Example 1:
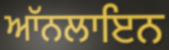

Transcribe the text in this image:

ਆੱਨਲਾਇਨ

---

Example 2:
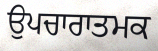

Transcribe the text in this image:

ਉਪਚਾਰਾਤਮਕ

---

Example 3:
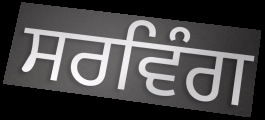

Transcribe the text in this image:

ਸਰਵਿੰਗ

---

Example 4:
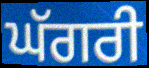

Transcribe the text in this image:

ਘੱਗਰੀ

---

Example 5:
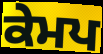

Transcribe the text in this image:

ਕੇਮਪ